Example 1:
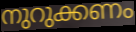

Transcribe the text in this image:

നുറുക്കണം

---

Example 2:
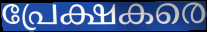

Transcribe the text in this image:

പ്രേക്ഷകരെ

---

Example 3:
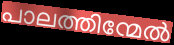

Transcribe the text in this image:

പാലത്തിന്മേൽ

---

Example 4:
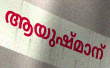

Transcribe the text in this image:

ആയുഷ്മാന്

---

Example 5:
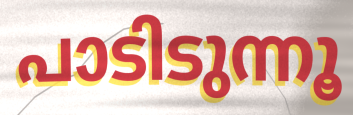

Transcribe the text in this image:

പാടിടുന്നൂ